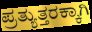
ಪ್ರತ್ಯುತ್ತರಕ್ಕಾಗಿ